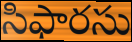
సిఫారసు